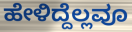
ಹೇಳಿದ್ದೆಲ್ಲವೂ